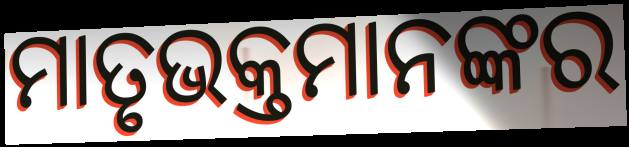
ମାତୃଭକ୍ତମାନଙ୍କର